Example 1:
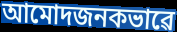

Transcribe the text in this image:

আমোদজনকভাৱে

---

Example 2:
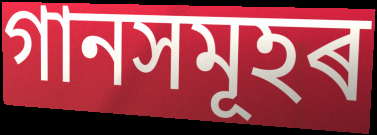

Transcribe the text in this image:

গানসমূহৰ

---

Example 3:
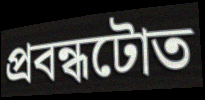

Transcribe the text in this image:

প্ৰবন্ধটোত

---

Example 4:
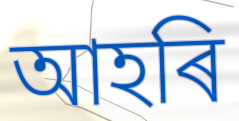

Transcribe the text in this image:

আহৰি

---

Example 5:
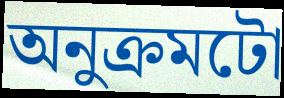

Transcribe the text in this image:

অনুক্ৰমটো